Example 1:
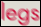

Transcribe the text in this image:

legs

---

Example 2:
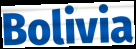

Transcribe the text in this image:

Bolivia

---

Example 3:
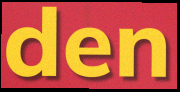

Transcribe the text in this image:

den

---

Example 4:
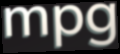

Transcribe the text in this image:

mpg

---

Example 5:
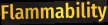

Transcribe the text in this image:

Flammability